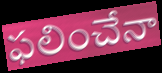
ఫలించేనా